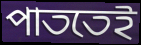
পাততেই